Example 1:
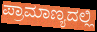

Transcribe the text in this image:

ಪ್ರಾಮಾಣ್ಯದಲ್ಲಿ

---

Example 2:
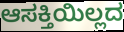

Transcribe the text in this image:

ಆಸಕ್ತಿಯಿಲ್ಲದ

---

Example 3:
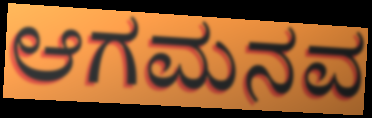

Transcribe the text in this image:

ಆಗಮನವ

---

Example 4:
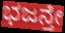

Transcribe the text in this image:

ಭಜನ್ತೇ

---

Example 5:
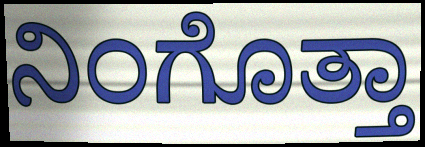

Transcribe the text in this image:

ನಿಂಗೊತ್ತಾ